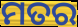
ମତର